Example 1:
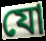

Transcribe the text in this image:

যো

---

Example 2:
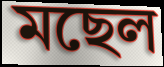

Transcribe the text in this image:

মছেল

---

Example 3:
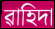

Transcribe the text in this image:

ৱাহিদা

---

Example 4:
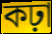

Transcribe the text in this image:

কঢ়া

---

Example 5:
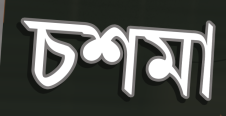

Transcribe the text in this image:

চশমা